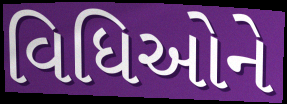
વિધિઓને